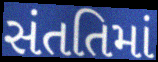
સંતતિમાં